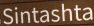
Sintashta